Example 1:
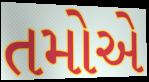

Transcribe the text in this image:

તમોએ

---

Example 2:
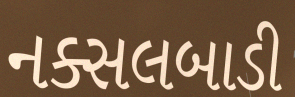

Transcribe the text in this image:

નક્સલબાડી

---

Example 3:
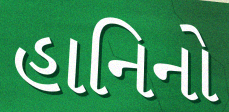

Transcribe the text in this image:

હાનિનો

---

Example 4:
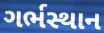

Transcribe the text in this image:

ગર્ભસ્થાન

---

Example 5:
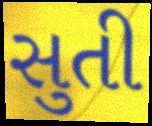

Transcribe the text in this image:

સુતી